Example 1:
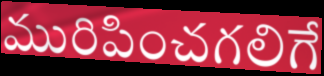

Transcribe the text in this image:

మురిపించగలిగే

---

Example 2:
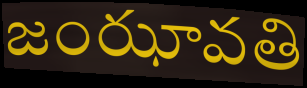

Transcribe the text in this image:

జంఝావతి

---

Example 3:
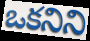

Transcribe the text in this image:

ఒకనిని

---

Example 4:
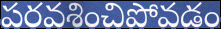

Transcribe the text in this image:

పరవశించిపోవడం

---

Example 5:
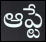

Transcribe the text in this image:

ఆప్టే